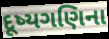
દૂષ્યગણિના